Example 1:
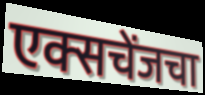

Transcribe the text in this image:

एक्सचेंजचा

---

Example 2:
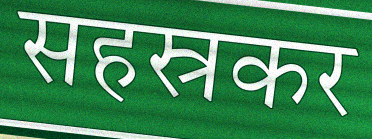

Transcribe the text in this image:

सहस्रकर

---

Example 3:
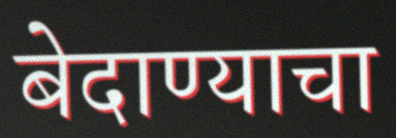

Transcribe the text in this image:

बेदाण्याचा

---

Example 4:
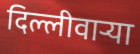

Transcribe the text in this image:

दिल्लीवाऱ्या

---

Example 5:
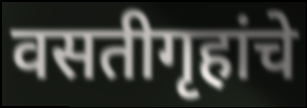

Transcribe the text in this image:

वसतीगृहांचे